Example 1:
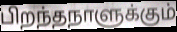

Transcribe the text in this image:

பிறந்தநாளுக்கும்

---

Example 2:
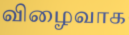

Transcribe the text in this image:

விழைவாக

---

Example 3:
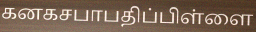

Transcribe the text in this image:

கனகசபாபதிப்பிள்ளை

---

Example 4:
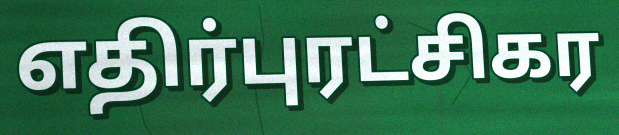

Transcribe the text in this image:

எதிர்புரட்சிகர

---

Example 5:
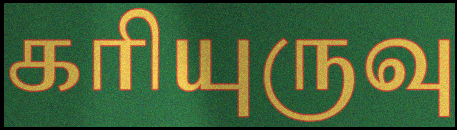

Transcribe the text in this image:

கரியுருவு